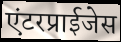
एंटरप्राईजेस